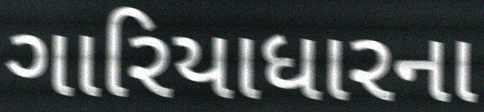
ગારિયાધારના